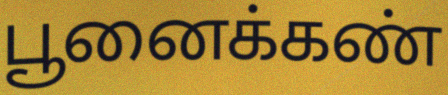
பூனைக்கண்